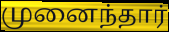
முனைந்தார்